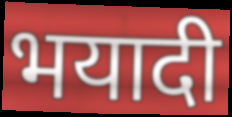
भयादी